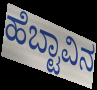
ಹೆಬ್ಟಾವಿನ